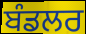
ਬੰਡਲਰ